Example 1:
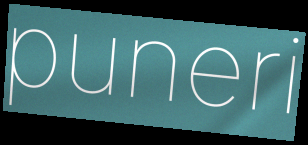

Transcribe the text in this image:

puneri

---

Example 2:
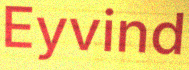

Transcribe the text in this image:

Eyvind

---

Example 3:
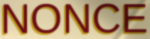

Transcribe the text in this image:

NONCE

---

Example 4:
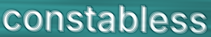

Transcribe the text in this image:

constabless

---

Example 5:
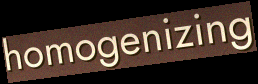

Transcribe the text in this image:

homogenizing